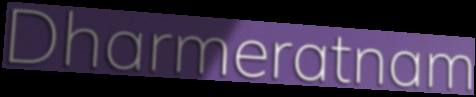
Dharmeratnam